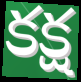
కక్ష